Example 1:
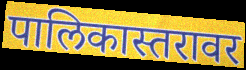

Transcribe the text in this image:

पालिकास्तरावर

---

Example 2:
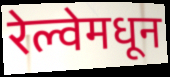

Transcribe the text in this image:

रेल्वेमधून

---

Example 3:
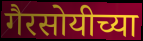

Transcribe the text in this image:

गैरसोयीच्या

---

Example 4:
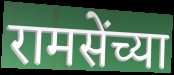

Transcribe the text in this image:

रामसेंच्या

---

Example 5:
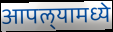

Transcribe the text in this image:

आपल्यामध्ये